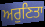
ਅਰੁਣਿਤਾ